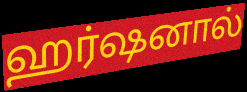
ஹர்ஷனால்